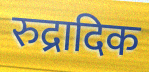
रुद्रादिक